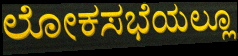
ಲೋಕಸಭೆಯಲ್ಲೂ